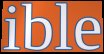
ible